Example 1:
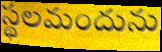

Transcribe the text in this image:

స్థలమందును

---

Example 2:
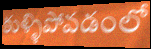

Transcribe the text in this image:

కుళ్ళిపోవడంలో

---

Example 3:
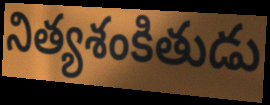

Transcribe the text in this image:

నిత్యశంకితుడు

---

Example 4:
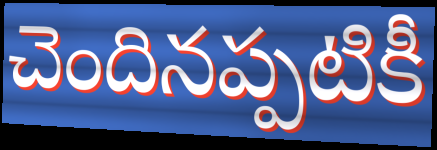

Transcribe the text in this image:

చెందినప్పటికీ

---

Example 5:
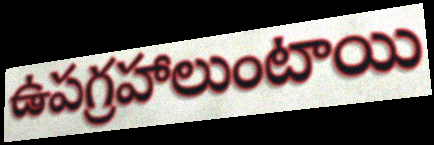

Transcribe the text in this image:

ఉపగ్రహాలుంటాయి